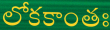
లోకకాంతః